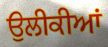
ਉਲੀਕੀਆਂ